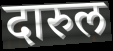
दारुल